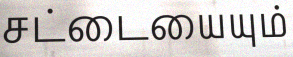
சட்டையையும்